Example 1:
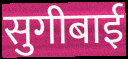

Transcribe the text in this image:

सुगीबाई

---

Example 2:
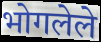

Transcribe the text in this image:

भोगलेले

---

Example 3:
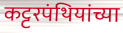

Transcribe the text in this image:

कट्टरपंथियांच्या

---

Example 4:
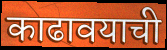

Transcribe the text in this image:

काढावयाची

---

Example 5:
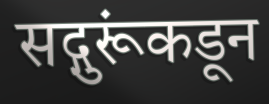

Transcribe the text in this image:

सद्गुरूंकडून